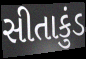
સીતાકુંડ